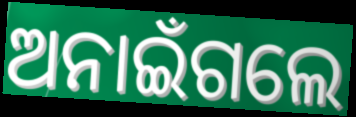
ଅନାଇଁଗଲେ